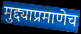
मुद्द्याप्रमाणेच